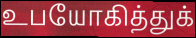
உபயோகித்துக்